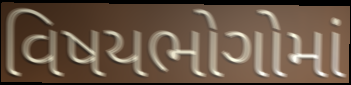
વિષયભોગોમાં